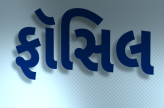
ફૉસિલ